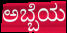
ಅಬ್ಬೆಯ